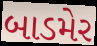
બાડમેર